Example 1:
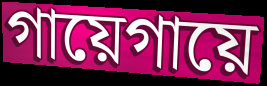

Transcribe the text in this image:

গায়েগায়ে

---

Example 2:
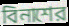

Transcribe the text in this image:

বিনাশের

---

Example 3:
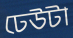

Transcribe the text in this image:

ঢেউটা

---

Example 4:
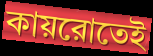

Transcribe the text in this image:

কায়রোতেই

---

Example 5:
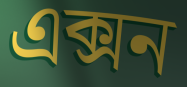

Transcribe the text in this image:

এক্সন